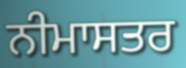
ਨੀਮਾਸਤਰ